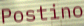
Postino